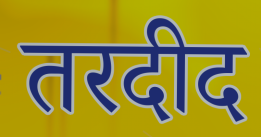
तरदीद